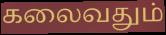
கலைவதும்